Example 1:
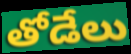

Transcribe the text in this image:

తోడేలు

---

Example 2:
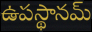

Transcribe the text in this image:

ఉపస్థానమ్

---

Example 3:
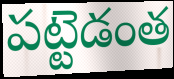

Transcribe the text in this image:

పట్టెడంత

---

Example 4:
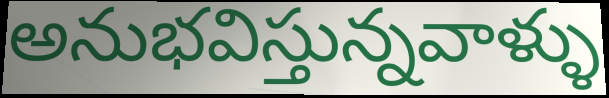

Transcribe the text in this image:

అనుభవిస్తున్నవాళ్ళు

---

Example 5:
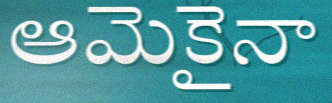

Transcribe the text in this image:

ఆమెకైనా